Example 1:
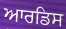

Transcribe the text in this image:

ਆਰਡਿਸ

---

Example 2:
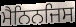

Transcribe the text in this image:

ਮੈਨਿਨਜਿਸ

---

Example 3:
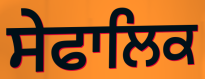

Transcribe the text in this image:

ਸੇਫਾਲਿਕ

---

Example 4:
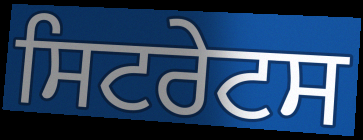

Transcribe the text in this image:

ਸਿਟਰੇਟਸ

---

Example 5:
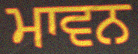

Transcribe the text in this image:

ਮਾਵਨ